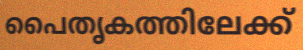
പൈതൃകത്തിലേക്ക്